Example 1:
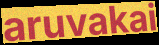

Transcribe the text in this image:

aruvakai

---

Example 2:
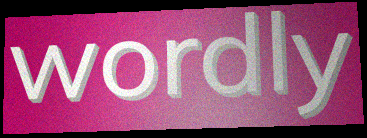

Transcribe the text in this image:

wordly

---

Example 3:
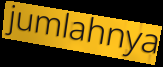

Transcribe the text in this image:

jumlahnya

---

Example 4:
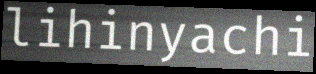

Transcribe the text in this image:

lihinyachi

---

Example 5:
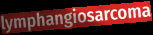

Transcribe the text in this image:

lymphangiosarcoma